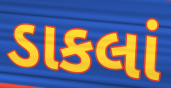
ડાકલાં